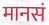
मानसं